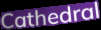
Cathedral